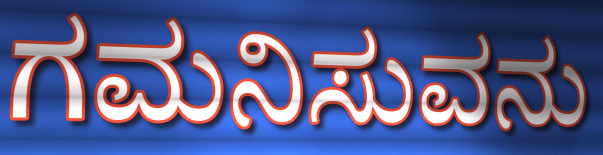
ಗಮನಿಸುವನು